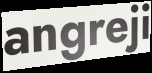
angreji